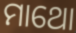
ମାଥୋ